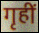
गृहीं